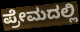
ಪ್ರೇಮದಲ್ಲಿ